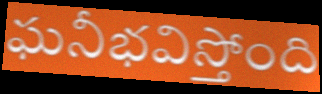
ఘనీభవిస్తోంది